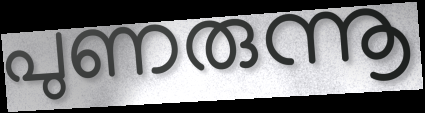
പുണരുന്നൂ